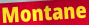
Montane